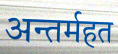
अन्तर्महत